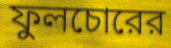
ফুলচোরের